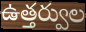
ఉత్తర్వుల